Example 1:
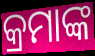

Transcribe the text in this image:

କ୍ରମାଙ୍କ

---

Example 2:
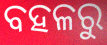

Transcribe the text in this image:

ବହଳରୁ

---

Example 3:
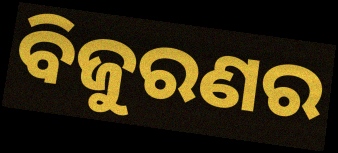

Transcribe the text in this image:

ବିଜୁରଣର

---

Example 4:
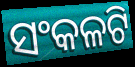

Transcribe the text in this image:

ସଂକଳଟି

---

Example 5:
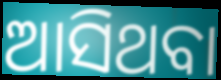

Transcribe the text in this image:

ଆସିଥବା